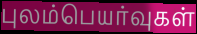
புலம்பெயர்வுகள்